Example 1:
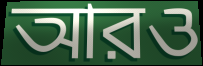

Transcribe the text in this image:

আরও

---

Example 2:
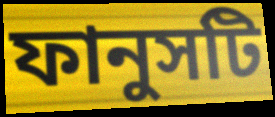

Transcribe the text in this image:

ফানুসটি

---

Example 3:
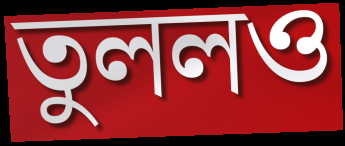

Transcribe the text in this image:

তুললও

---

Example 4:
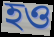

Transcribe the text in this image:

হও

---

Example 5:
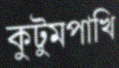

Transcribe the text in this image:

কুটুমপাখি